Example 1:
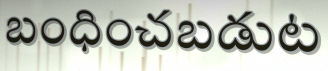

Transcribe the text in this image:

బంధించబడుట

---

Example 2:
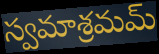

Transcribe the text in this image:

స్వమాశ్రమమ్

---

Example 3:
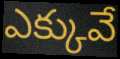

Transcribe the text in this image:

ఎక్కువే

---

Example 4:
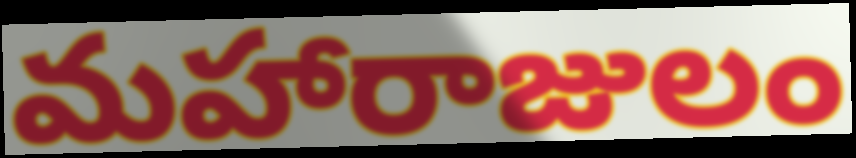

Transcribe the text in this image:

మహారాజులం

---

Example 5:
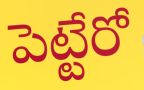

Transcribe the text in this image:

పెట్టేరో